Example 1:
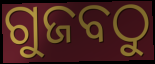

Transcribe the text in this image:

ଗୁଜବଠୁ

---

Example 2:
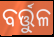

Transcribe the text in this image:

ବର୍ତ୍ତୁଳ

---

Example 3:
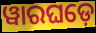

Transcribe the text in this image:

ୱାରଘଡ଼େ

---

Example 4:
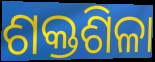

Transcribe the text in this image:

ଶକ୍ତଶିଳା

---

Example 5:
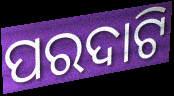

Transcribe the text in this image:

ପରଦାଟି